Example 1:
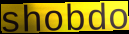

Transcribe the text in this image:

shobdo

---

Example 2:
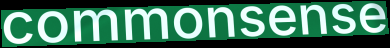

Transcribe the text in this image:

commonsense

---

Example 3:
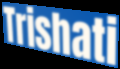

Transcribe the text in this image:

Trishati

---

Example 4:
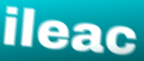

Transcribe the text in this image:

ileac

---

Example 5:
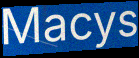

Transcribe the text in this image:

Macys